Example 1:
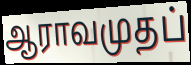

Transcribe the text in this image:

ஆராவமுதப்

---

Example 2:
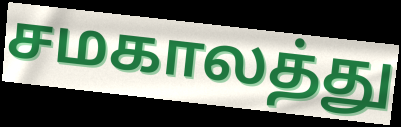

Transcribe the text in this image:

சமகாலத்து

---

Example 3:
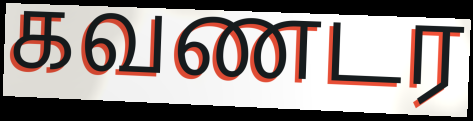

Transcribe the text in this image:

கவணடர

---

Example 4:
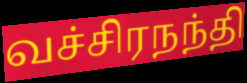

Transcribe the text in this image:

வச்சிரநந்தி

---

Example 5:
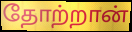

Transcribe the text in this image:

தோற்றான்